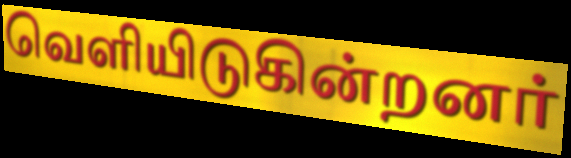
வெளியிடுகின்றனர்